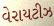
વેરાયટીઝ